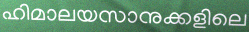
ഹിമാലയസാനുക്കളിലെ